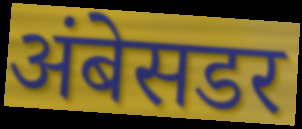
अंबेसडर